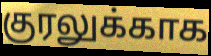
குரலுக்காக